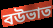
বউভাত